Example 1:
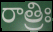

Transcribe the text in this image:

రాత్రిః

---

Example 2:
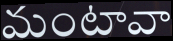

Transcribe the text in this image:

మంటావా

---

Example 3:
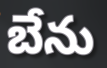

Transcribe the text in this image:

బేను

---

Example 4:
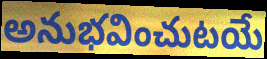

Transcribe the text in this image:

అనుభవించుటయే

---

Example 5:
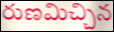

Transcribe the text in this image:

రుణమిచ్చిన